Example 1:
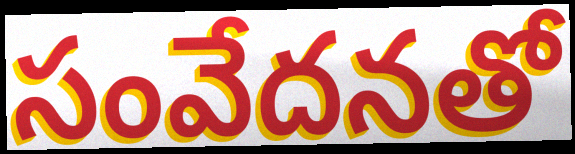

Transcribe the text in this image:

సంవేదనతో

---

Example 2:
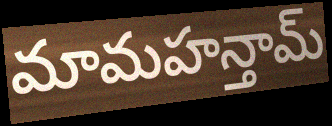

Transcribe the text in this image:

మామహన్తామ్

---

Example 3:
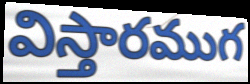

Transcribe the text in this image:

విస్తారముగ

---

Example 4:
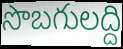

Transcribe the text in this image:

సొబగులద్ది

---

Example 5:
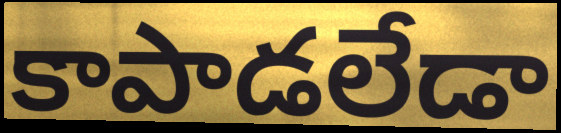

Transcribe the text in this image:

కాపాడలేడా